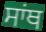
ਸਾਂਥ